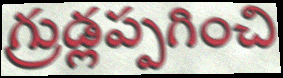
గ్రుడ్లప్పగించి